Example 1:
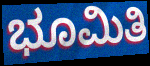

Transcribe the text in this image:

ಭೂಮಿತಿ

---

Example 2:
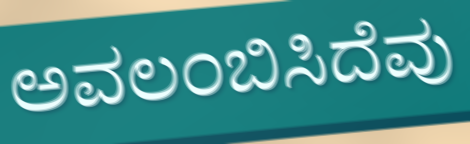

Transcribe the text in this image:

ಅವಲಂಬಿಸಿದೆವು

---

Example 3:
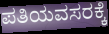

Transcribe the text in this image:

ಪತಿಯವಸರಕ್ಕೆ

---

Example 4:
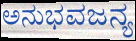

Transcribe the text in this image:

ಅನುಭವಜನ್ಯ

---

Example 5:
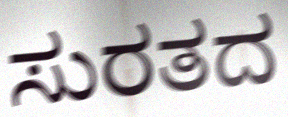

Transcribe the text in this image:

ಸುರತದ